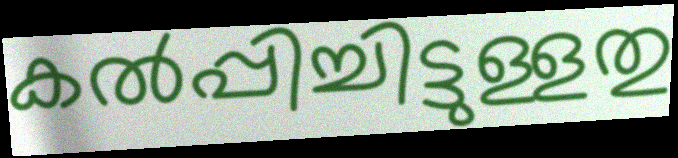
കൽപ്പിച്ചിട്ടുള്ളതു